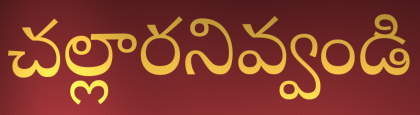
చల్లారనివ్వండి